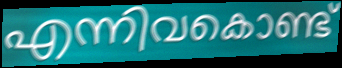
എന്നിവകൊണ്ട്